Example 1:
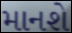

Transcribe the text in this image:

માનશે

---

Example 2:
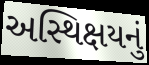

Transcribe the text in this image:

અસ્થિક્ષયનું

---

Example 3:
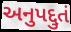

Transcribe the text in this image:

અનુપદ્દુતં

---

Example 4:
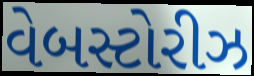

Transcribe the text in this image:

વેબસ્ટોરીઝ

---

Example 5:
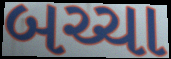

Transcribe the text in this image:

બચ્ચા